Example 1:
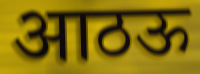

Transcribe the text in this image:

आठऊ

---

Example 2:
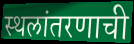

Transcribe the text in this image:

स्थलांतरणाची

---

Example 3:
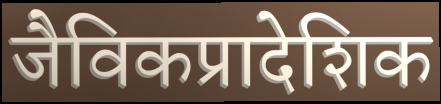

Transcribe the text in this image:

जैविकप्रादेशिक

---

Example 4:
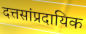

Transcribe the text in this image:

दत्तसांप्रदायिक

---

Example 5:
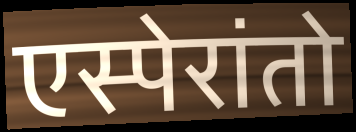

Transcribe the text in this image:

एस्पेरांतो